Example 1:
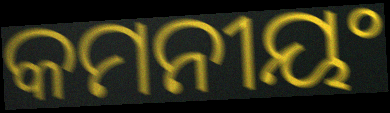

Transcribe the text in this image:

କମନୀୟଂ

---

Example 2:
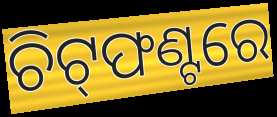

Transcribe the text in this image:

ଚିଟ୍‌ଫଣ୍ଟରେ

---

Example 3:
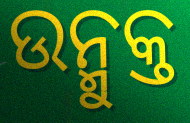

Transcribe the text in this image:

ଉନ୍ମୁକ୍ତ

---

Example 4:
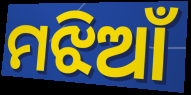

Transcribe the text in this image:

ମଝିଆଁ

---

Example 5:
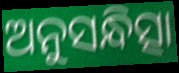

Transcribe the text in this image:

ଅନୁସନ୍ଧିତ୍ସା